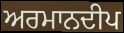
ਅਰਮਾਨਦੀਪ